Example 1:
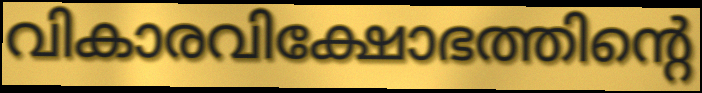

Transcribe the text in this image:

വികാരവിക്ഷോഭത്തിന്റെ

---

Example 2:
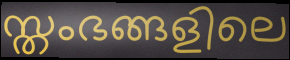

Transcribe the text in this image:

സ്തംഭങ്ങളിലെ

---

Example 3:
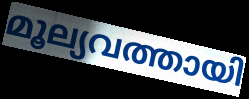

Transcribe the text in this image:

മൂല്യവത്തായി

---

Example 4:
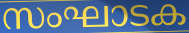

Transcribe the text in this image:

സംഘാടക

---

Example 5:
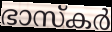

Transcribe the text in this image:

ഭാസ്കർ